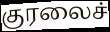
குரலைச்